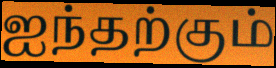
ஐந்தற்கும்